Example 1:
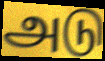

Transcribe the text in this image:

அடு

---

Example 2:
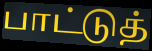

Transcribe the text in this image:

பாட்டுத்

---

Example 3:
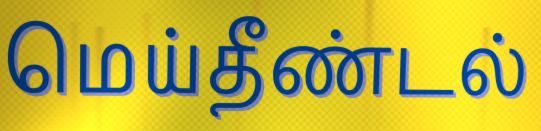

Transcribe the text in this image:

மெய்தீண்டல்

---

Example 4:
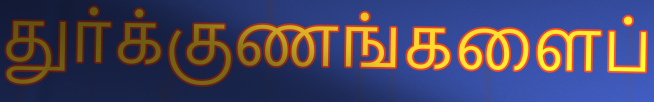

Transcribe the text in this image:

துர்க்குணங்களைப்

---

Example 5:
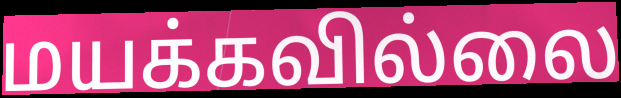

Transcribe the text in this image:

மயக்கவில்லை